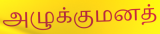
அழுக்குமனத்